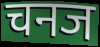
चनज